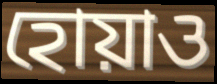
হোয়াও